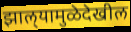
झाल्यामुळेदेखील